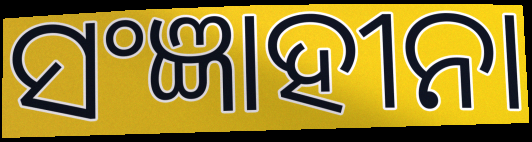
ସଂଜ୍ଞାହୀନା